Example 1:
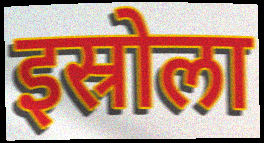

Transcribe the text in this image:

इस्रोला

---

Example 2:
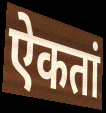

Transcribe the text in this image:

ऐकतां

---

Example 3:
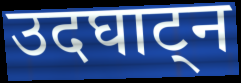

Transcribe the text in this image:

उदघाट्न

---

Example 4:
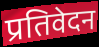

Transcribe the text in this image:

प्रतिवेदन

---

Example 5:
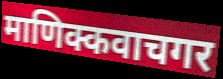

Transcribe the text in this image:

माणिक्कवाचगर